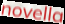
novella